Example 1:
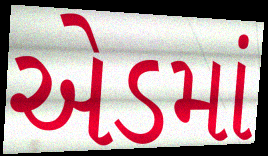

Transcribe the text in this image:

એડમાં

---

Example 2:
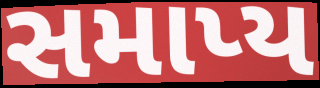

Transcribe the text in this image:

સમાપ્ય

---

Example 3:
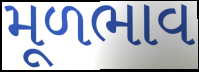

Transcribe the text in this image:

મૂળભાવ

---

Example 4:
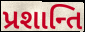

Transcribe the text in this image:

પ્રશાન્તિ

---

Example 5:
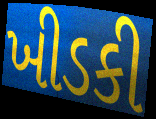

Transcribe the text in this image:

ખીડકી